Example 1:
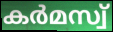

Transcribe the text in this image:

കർമസ്വ്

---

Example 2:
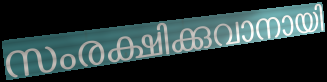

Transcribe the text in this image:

സംരക്ഷിക്കുവാനായി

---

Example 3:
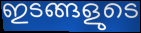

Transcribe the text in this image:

ഇടങ്ങളുടെ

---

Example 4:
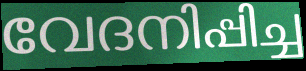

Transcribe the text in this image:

വേദനിപ്പിച്ച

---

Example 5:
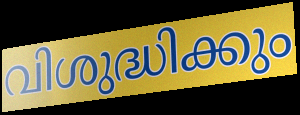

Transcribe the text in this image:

വിശുദ്ധിക്കും